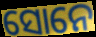
ସୋନେ